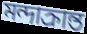
মন্দাক্রান্ত